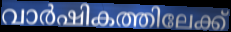
വാർഷികത്തിലേക്ക്